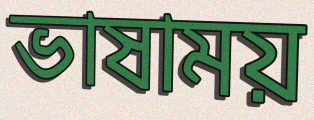
ভাষাময়